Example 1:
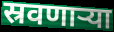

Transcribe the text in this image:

स्रवणाऱ्या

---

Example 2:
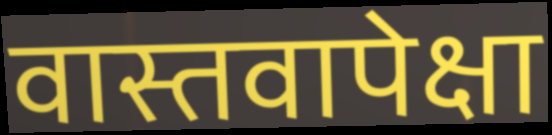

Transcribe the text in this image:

वास्तवापेक्षा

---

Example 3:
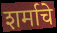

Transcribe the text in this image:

शर्माचे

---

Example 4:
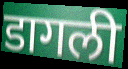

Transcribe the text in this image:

डागली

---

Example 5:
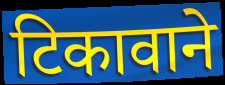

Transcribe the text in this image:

टिकावाने